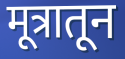
मूत्रातून